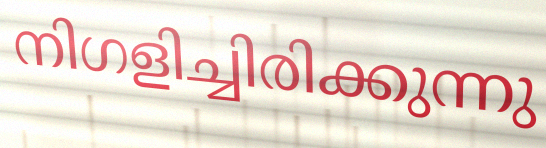
നിഗളിച്ചിരിക്കുന്നു